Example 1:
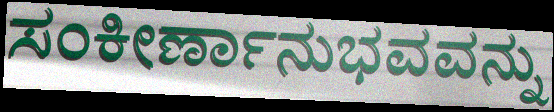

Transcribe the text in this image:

ಸಂಕೀರ್ಣಾನುಭವವನ್ನು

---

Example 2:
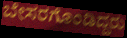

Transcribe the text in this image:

ಬೇಸರಗೊಂಡಿದ್ದರು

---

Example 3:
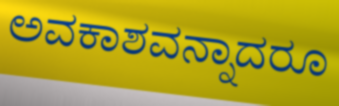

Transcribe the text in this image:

ಅವಕಾಶವನ್ನಾದರೂ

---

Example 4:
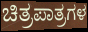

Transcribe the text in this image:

ಚಿತ್ರಪಾತ್ರಗಳ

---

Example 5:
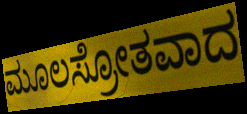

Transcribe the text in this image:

ಮೂಲಸ್ರೋತವಾದ